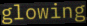
glowing